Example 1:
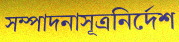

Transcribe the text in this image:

সম্পাদনাসূত্রনির্দেশ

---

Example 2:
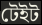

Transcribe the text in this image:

টেইট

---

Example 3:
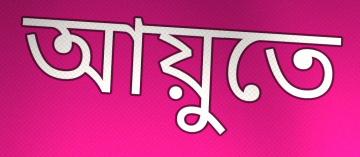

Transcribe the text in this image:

আয়ুতে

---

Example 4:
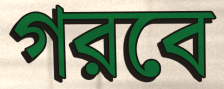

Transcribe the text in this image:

গরবে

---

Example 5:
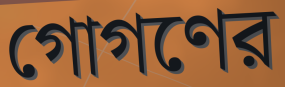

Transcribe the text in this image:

গোগণের